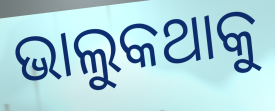
ଭାଲୁକଥାକୁ